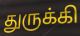
துருக்கி